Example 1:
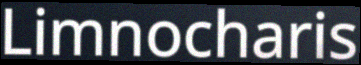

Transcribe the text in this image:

Limnocharis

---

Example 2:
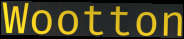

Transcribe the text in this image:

Wootton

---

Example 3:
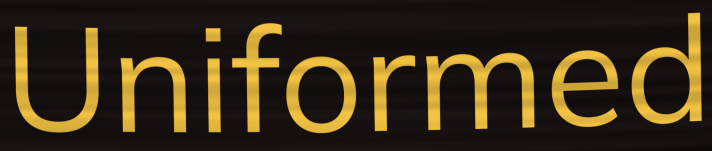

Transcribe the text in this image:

Uniformed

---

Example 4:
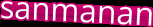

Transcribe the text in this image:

sanmanan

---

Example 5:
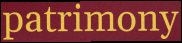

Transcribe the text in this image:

patrimony